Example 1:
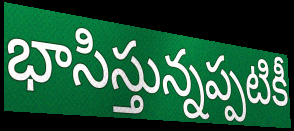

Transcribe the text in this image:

భాసిస్తున్నప్పటికీ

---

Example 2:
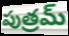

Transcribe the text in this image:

పుత్రమ్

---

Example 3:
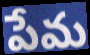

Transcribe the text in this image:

పేమ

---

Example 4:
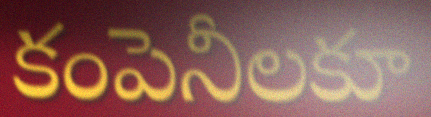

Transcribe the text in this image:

కంపెనీలకూ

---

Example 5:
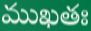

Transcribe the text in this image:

ముఖతః